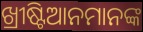
ଖ୍ରୀଷ୍ଟିଆନମାନଙ୍କ